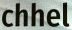
chhel